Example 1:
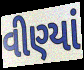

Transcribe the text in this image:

વીણ્યાં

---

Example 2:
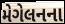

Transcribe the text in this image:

મેગેલનના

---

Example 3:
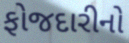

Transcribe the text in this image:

ફોજદારીનો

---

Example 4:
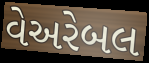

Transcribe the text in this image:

વેઅરેબલ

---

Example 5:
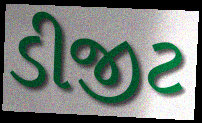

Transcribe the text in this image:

ડીજીટ